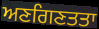
ਅਣਗਿਣਤਤਾ